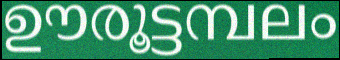
ഊരൂട്ടമ്പലം